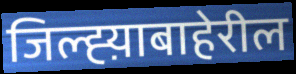
जिल्ह्य़ाबाहेरील